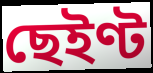
ছেইণ্ট